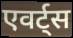
एवर्ट्स